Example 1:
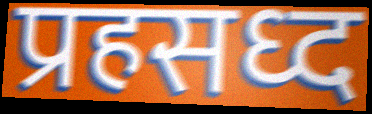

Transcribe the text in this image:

प्रहसध्द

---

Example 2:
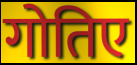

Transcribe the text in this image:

गोतिए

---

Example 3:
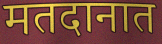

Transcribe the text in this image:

मतदानात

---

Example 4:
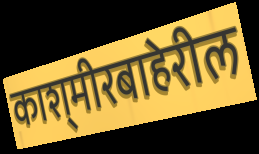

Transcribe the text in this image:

काश्मीरबाहेरील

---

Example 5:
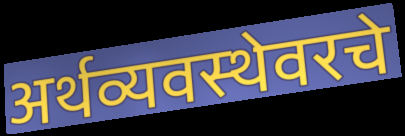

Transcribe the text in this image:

अर्थव्यवस्थेवरचे